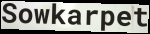
Sowkarpet